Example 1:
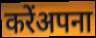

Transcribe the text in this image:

करेंअपना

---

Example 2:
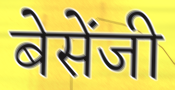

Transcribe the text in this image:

बेसेंजी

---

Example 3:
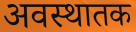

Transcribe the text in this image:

अवस्थातक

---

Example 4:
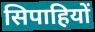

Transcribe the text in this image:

सिपाहियों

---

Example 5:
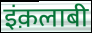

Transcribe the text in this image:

इंक़लाबी